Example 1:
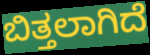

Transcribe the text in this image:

ಬಿತ್ತಲಾಗಿದೆ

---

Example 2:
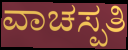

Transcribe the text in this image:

ವಾಚಸ್ಪತಿ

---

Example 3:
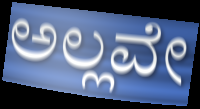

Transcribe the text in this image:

ಅಲ್ಲವೇ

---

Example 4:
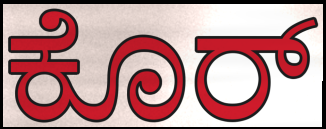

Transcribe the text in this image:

ಕೊರ್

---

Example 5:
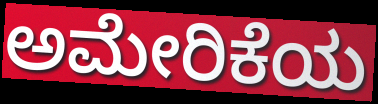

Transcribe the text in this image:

ಅಮೇರಿಕೆಯ